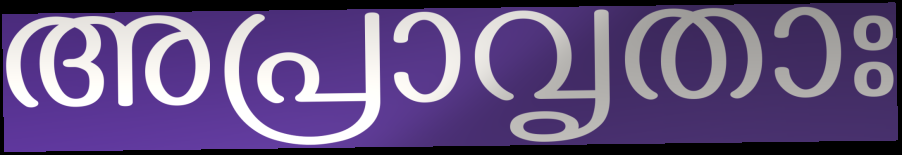
അപ്രാവൃതാഃ